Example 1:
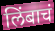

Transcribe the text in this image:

लिंबाचं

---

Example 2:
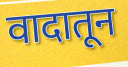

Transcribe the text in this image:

वादातून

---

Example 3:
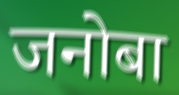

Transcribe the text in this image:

जनोबा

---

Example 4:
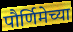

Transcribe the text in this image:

पौर्णिमेच्या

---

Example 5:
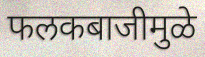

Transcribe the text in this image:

फलकबाजीमुळे